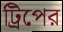
ট্রিপের